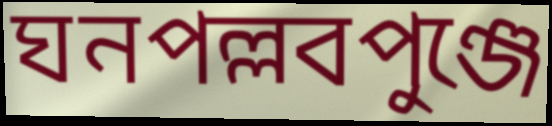
ঘনপল্লবপুঞ্জে